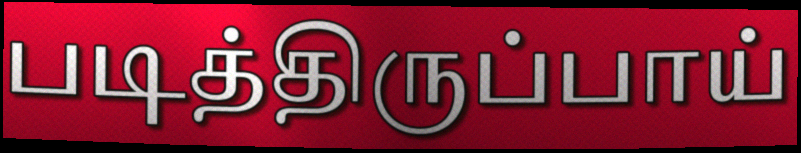
படித்திருப்பாய்